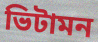
ভিটামন